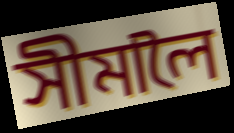
সীমালৈ